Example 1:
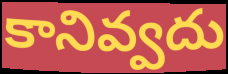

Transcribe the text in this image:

కానివ్వదు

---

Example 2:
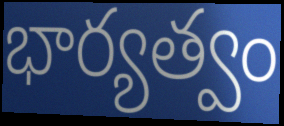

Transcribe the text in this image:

భార్యత్వం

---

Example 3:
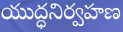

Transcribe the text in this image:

యుద్ధనిర్వహణ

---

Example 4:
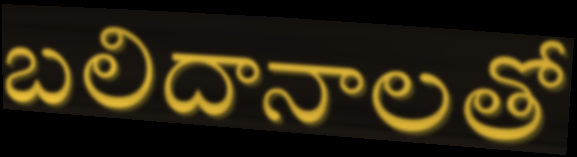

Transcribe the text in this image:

బలిదానాలతో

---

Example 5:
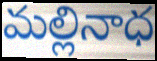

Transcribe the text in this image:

మల్లినాధ